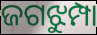
ଜଗଝୁମ୍ପା